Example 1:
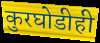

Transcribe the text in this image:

कुरघोडीही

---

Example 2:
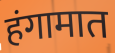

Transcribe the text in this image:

हंगामात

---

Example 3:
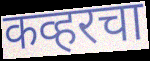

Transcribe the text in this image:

कव्हरचा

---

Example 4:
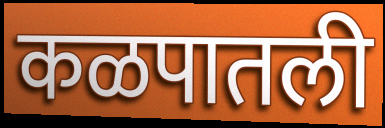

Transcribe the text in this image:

कळपातली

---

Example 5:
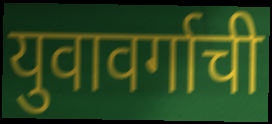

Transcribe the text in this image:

युवावर्गाची